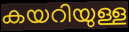
കയറിയുള്ള